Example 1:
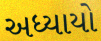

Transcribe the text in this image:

અધ્યાયો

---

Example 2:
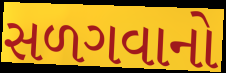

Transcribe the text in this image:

સળગવાનો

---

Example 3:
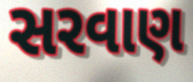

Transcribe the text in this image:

સરવાણ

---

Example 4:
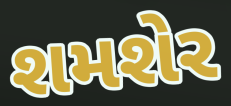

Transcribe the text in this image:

શમશેર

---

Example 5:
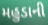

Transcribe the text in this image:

મહુડાની